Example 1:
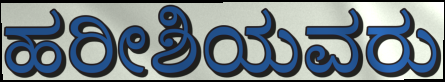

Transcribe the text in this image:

ಹರೀಶಿಯವರು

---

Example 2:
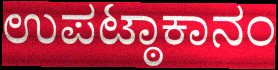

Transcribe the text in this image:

ಉಪಟ್ಠಾಕಾನಂ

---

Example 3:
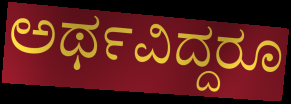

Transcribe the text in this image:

ಅರ್ಥವಿದ್ದರೂ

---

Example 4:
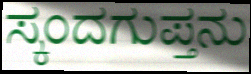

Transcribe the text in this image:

ಸ್ಕಂದಗುಪ್ತನು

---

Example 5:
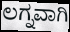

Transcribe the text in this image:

ಲಗ್ನವಾಗಿ